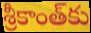
శ్రీకాంత్‌కు